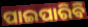
ପାଇପାରିବି